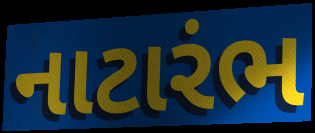
નાટારંભ